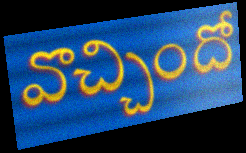
వొచ్చిందో